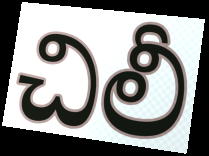
చిలీ